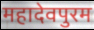
महादेवपुरम